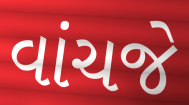
વાંચજે